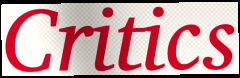
Critics